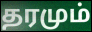
தரமும்